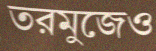
তরমুজেও